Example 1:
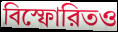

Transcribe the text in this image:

বিস্ফোরিতও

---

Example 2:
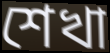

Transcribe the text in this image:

শেখা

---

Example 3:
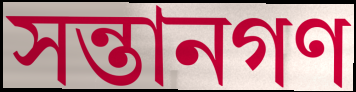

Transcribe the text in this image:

সন্তানগণ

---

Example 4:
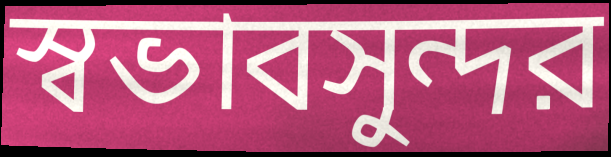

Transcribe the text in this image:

স্বভাবসুন্দর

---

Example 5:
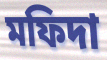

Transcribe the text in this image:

মফিদা